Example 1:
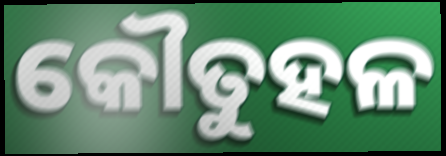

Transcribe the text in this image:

କୌତୁହଳ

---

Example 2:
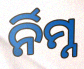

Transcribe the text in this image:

ର୍ନିମ୍ନ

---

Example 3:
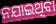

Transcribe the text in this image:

ନଯାଇଥିବା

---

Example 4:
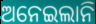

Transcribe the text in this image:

ଅନେଇଲାନି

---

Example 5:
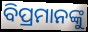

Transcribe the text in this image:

ବିପ୍ରମାନଙ୍କୁ